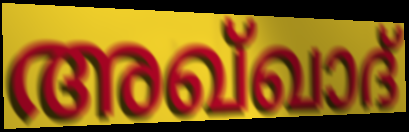
അഖ്ഖാദ്